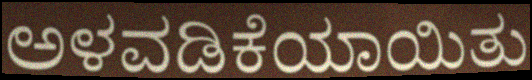
ಅಳವಡಿಕೆಯಾಯಿತು